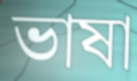
ভাষা